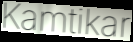
Kamtikar